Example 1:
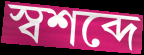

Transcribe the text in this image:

স্বশব্দে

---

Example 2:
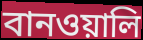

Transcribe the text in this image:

বানওয়ালি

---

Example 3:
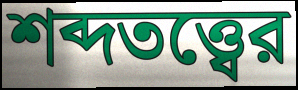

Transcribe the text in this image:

শব্দতত্ত্বের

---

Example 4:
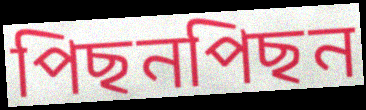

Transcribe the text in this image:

পিছনপিছন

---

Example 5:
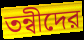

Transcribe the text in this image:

তন্বীদের